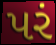
પરં